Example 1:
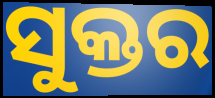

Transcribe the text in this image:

ସୁକ୍ତର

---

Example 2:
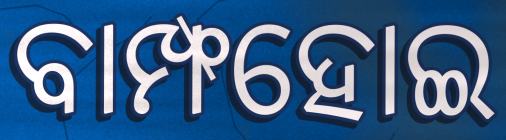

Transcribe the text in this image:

ବାମ୍ଫହୋଇ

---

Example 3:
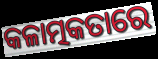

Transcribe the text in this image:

କଳାତ୍ମକତାରେ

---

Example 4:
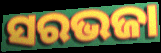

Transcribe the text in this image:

ସରଭଜା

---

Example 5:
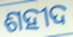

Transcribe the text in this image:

ଶହୀଦ